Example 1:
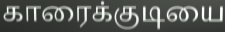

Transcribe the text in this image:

காரைக்குடியை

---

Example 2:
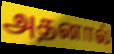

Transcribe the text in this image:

அதனால்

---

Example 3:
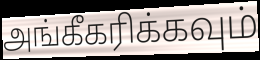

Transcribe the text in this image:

அங்கீகரிக்கவும்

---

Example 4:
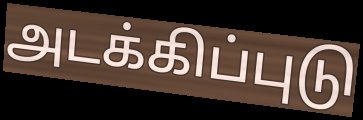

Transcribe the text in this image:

அடக்கிப்புடு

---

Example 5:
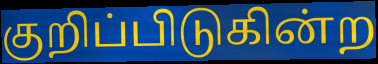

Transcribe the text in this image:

குறிப்பிடுகின்ற